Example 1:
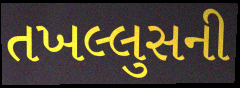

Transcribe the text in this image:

તખલ્લુસની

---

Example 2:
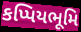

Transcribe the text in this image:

કપ્પિયભૂમિ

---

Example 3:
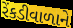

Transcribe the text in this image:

રેંકડીવાળાને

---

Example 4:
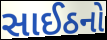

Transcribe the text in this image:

સાઈઠનો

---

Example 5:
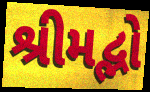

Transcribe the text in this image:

શ્રીમદ્ભો